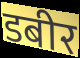
डबीर